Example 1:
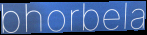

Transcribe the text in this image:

bhorbela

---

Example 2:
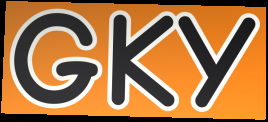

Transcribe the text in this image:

GKY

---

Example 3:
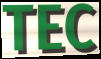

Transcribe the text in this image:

TEC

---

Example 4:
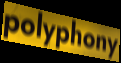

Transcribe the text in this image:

polyphony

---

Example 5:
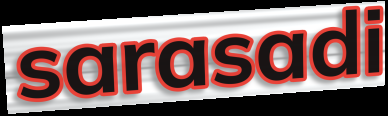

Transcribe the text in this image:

sarasadi